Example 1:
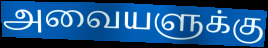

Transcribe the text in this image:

அவையளுக்கு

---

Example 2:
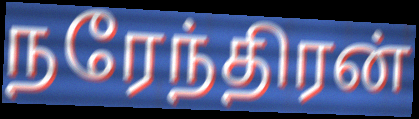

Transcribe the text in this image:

நரேந்திரன்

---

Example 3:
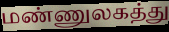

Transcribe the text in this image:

மண்ணுலகத்து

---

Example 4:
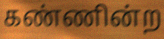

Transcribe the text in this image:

கண்ணின்ற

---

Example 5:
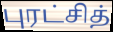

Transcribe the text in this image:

புரட்சித்